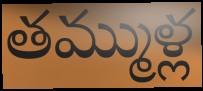
తమ్ముళ్ల